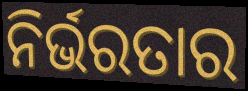
ନିର୍ଭରତାର